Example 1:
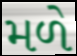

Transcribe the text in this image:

મળે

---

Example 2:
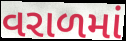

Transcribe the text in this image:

વરાળમાં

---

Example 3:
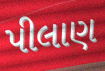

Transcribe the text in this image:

પીલાણ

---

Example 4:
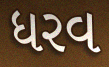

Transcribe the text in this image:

ધરવ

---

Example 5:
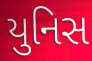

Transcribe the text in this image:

યુનિસ